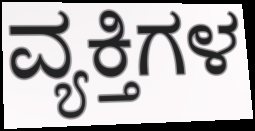
ವ್ಯಕ್ತಿಗಳ